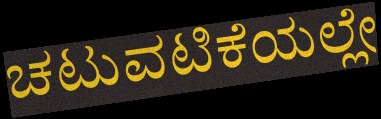
ಚಟುವಟಿಕೆಯಲ್ಲೇ